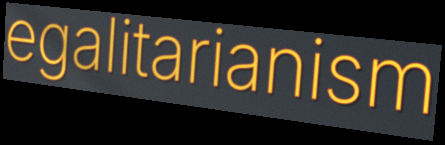
egalitarianism